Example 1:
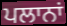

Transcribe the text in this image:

ਪਲਾਨਾਂ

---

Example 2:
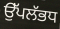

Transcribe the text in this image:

ਉੱਪਲੱਭਧ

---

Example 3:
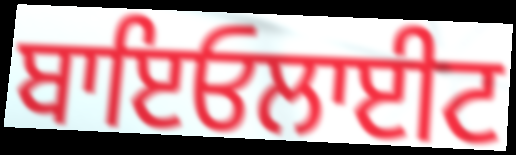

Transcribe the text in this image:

ਬਾਇਓਲਾਈਟ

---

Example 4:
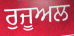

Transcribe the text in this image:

ਰੁਜੂਅਲ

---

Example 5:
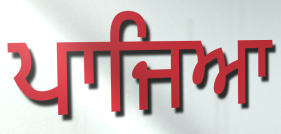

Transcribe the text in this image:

ਪਾਜਿਆ